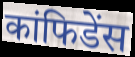
कांफिडेंस